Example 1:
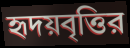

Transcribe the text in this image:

হৃদয়বৃত্তির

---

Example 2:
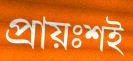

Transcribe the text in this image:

প্রায়ঃশই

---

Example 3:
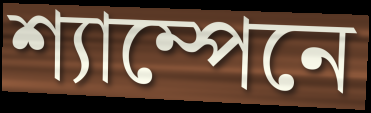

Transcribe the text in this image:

শ্যাম্পেনে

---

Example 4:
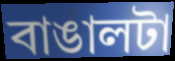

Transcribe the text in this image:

বাঙালটা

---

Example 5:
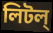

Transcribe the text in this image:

লিটল্